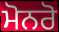
ਮੋਨਰੋ